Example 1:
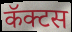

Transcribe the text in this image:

कॅक्टस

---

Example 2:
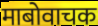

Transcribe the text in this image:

माबोवाचक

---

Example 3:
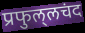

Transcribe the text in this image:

प्रफुल्लचंद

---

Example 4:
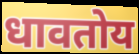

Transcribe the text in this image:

धावतोय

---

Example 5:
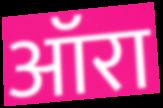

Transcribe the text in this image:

ऑरा